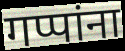
गप्पांना